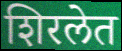
शिरलेत